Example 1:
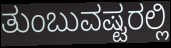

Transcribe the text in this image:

ತುಂಬುವಷ್ಟರಲ್ಲಿ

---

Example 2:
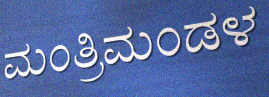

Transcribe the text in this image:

ಮಂತ್ರಿಮಂಡಳ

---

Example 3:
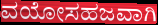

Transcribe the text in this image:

ವಯೋಸಹಜವಾಗಿ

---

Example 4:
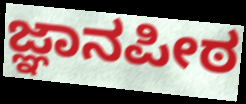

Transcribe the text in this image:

ಜ್ಞಾನಪೀಠ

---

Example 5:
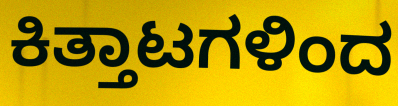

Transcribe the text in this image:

ಕಿತ್ತಾಟಗಳಿಂದ